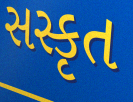
સસ્કૃત